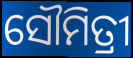
ସୌମିତ୍ରୀ